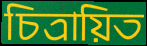
চিত্ৰায়িত